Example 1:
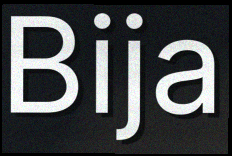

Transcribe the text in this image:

Bija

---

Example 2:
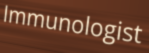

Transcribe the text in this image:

Immunologist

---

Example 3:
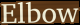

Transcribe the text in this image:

Elbow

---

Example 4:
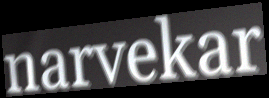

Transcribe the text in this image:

narvekar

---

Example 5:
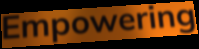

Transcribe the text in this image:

Empowering